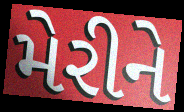
મેરીને